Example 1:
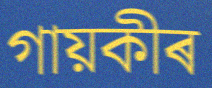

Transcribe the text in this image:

গায়কীৰ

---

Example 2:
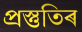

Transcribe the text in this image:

প্ৰস্তুতিৰ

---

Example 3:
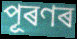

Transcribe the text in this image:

পূৰণৰ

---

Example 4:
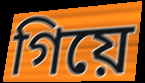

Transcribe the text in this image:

গিয়ে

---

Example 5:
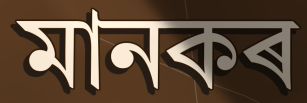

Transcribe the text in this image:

মানকৰ